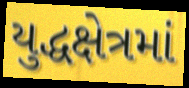
યુદ્ધક્ષેત્રમાં